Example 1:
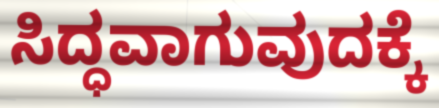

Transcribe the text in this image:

ಸಿದ್ಧವಾಗುವುದಕ್ಕೆ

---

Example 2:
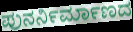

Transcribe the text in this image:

ಪುನರ್ನಿರ್ಮಾಣದ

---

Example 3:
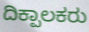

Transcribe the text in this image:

ದಿಕ್ಪಾಲಕರು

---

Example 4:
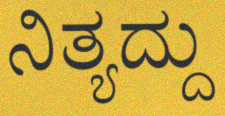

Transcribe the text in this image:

ನಿತ್ಯದ್ದು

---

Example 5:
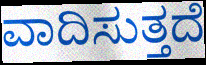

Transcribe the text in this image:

ವಾದಿಸುತ್ತದೆ